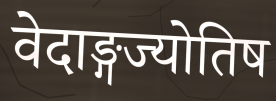
वेदाङ्गज्योतिष